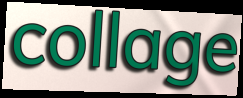
collage